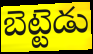
బెట్టెడు